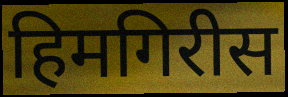
हिमगिरीस